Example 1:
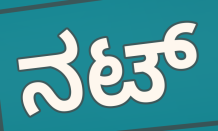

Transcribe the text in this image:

ನಟ್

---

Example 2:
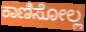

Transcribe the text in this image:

ಕಾಣಿಸೋಲ್ಲ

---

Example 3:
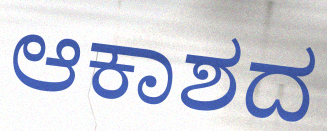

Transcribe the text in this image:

ಆಕಾಶದ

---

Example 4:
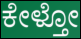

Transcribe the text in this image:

ಕೇಳ್ತೋ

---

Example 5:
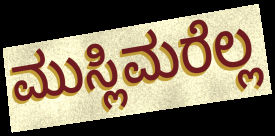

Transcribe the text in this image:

ಮುಸ್ಲಿಮರೆಲ್ಲ